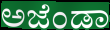
ಅಜೆಂಡಾ